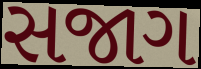
સજાગ